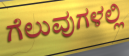
ಗೆಲುವುಗಳಲ್ಲಿ